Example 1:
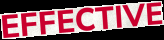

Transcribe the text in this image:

EFFECTIVE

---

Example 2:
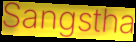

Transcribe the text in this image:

Sangstha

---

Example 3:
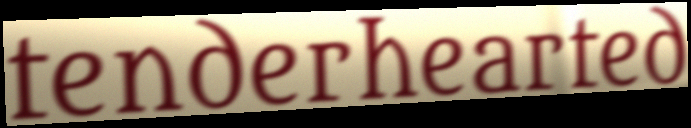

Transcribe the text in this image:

tenderhearted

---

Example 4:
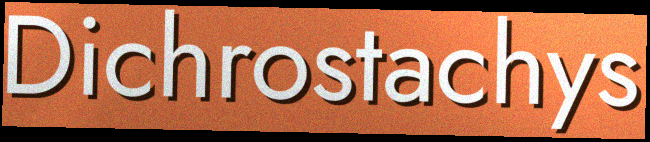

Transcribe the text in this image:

Dichrostachys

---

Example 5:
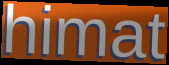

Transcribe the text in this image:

himat